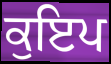
ਕੁਇਪ